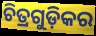
ଚିତ୍ରଗୁଡ଼ିକର